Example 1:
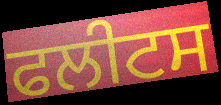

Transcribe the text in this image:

ਫਲੀਟਸ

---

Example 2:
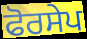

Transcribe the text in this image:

ਫੋਰਸੇਪ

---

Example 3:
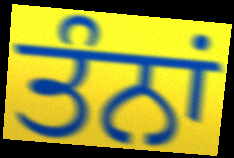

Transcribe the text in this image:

ਤੰਨਾਂ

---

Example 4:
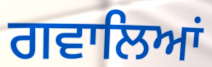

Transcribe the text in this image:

ਗਵਾਲਿਆਂ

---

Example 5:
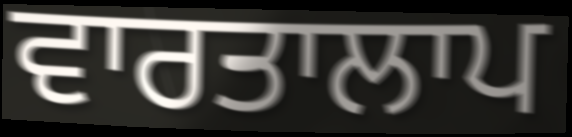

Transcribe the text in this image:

ਵਾਰਤਾਲਾਪ